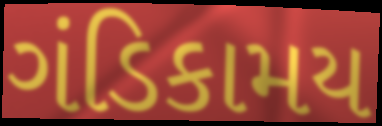
ગંડિકામય